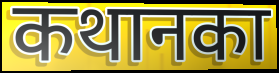
कथानका